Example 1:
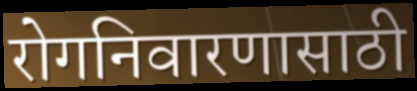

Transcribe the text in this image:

रोगनिवारणासाठी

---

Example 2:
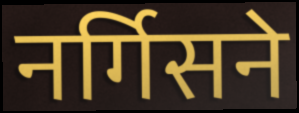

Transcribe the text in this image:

नर्गिसने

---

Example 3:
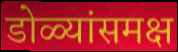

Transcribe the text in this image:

डोळ्यांसमक्ष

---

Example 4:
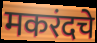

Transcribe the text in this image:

मकरंदचे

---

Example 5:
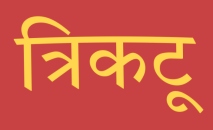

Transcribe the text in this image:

त्रिकटू